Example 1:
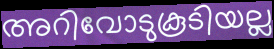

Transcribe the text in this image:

അറിവോടുകൂടിയല്ല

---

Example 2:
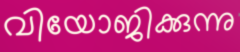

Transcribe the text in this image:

വിയോജിക്കുന്നു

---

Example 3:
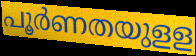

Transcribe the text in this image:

പൂർണതയുളള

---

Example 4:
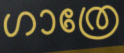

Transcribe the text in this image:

ഗാത്രേ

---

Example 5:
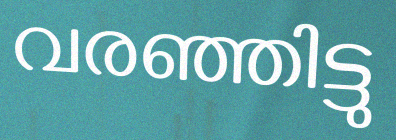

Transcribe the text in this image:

വരഞ്ഞിട്ടു